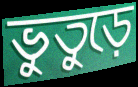
ভুতুড়ে